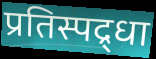
प्रतिस्पद्र्धा